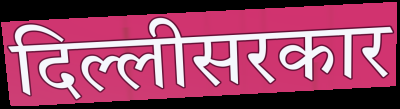
दिल्लीसरकार